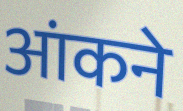
आंकने